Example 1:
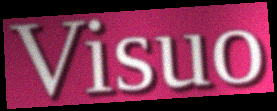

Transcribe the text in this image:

Visuo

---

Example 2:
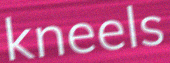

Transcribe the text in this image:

kneels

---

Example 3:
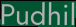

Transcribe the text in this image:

Pudhil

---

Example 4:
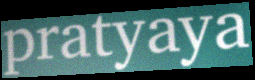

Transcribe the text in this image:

pratyaya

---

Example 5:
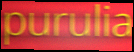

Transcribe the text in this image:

purulia